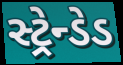
સ્ટ્રેન્ડેડ